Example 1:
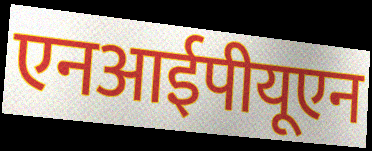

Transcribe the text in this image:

एनआईपीयूएन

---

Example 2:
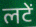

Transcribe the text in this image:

लटें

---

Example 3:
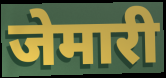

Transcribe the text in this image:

जेमारी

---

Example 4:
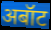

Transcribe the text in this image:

अबॉट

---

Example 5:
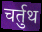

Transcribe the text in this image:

चर्तुथ